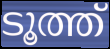
ടൂത്ത്